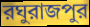
রঘুরাজপুর